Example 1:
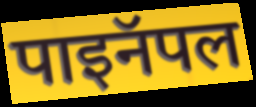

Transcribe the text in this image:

पाइनॅपल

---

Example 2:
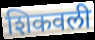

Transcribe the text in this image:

शिकवली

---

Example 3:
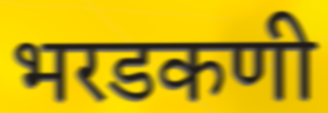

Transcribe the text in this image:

भरडकणी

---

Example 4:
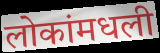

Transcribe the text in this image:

लोकांमधली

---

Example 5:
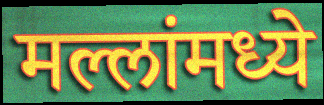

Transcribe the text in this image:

मल्लांमध्ये